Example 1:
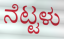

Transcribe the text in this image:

ನೆಟ್ಟಳು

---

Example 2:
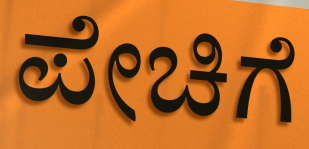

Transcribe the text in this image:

ಪೇಚಿಗೆ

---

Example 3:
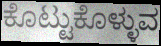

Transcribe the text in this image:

ಕೊಟ್ಟುಕೊಳ್ಳುವ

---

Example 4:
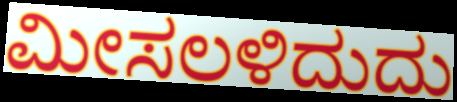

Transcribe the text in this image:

ಮೀಸಲಳಿದುದು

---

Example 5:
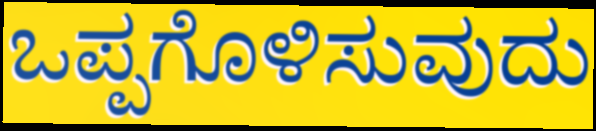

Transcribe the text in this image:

ಒಪ್ಪಗೊಳಿಸುವುದು